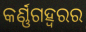
କର୍ଣ୍ଣଗହ୍ୱରର